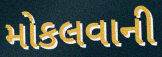
મોકલવાની